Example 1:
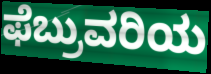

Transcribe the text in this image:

ಫೆಬ್ರುವರಿಯ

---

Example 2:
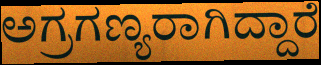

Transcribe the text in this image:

ಅಗ್ರಗಣ್ಯರಾಗಿದ್ದಾರೆ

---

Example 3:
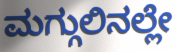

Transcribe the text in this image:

ಮಗ್ಗುಲಿನಲ್ಲೇ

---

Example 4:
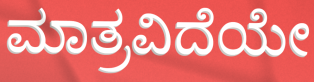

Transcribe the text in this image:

ಮಾತ್ರವಿದೆಯೇ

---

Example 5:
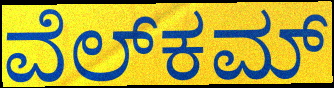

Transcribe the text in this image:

ವೆಲ್‍ಕಮ್